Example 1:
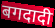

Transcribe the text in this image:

बगदादी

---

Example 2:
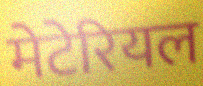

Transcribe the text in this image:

मेटेरियल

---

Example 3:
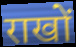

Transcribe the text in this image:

राखों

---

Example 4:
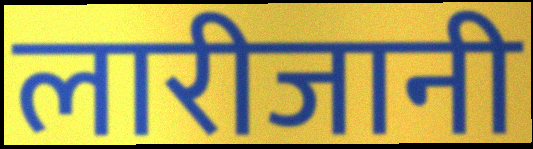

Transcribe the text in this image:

लारीजानी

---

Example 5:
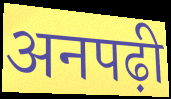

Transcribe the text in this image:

अनपढ़ी